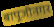
बापूजीनगर